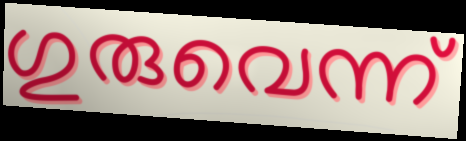
ഗുരുവെന്ന്